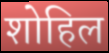
शोहिल